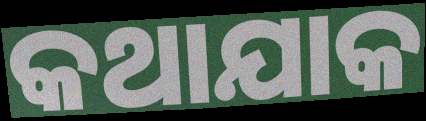
କଥାଯାକ